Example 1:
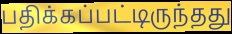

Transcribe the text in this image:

பதிக்கப்பட்டிருந்தது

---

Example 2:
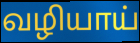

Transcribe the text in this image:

வழியாய்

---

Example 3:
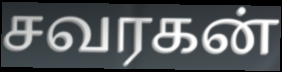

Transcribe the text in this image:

சவரகன்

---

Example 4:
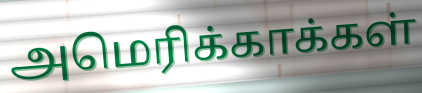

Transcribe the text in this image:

அமெரிக்காக்கள்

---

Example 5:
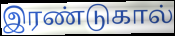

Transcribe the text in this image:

இரண்டுகால்